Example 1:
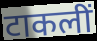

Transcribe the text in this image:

टाकलीं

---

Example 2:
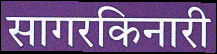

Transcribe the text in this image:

सागरकिनारी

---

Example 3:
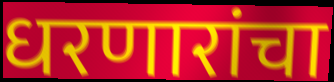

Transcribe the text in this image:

धरणारांचा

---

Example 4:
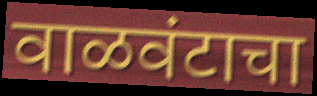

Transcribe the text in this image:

वाळवंटाचा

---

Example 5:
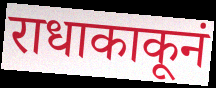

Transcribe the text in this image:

राधाकाकूनं